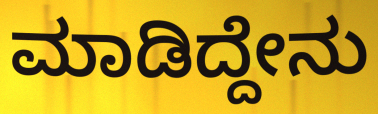
ಮಾಡಿದ್ದೇನು